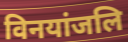
विनयांजलि